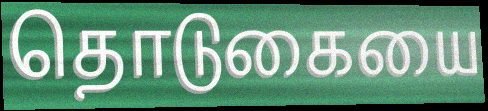
தொடுகையை